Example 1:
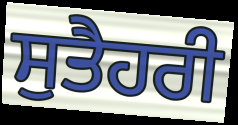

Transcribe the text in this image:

ਸੁਤੈਹਰੀ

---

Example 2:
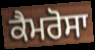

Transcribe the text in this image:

ਕੈਮਰੋਸਾ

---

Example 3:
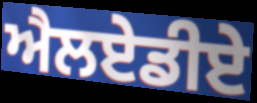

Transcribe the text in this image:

ਐਲਏਡੀਏ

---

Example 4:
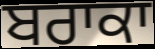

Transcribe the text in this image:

ਬਰਾਕਾ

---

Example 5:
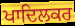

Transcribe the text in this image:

ਖਾਦਿਲਕਰ